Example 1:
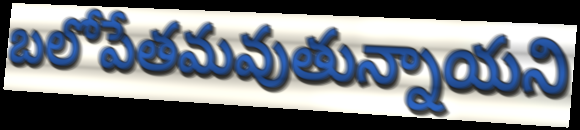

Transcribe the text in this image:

బలోపేతమవుతున్నాయని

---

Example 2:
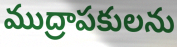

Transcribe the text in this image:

ముద్రాపకులను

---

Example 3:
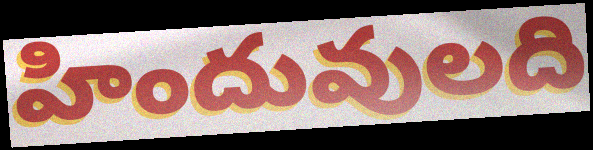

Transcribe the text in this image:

హిందువులది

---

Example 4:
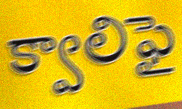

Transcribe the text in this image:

క్వాలిఫై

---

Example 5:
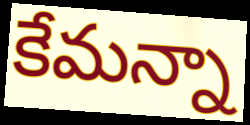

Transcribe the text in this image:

కేమన్నా